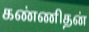
கண்ணிதன்